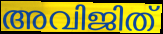
അവിജിത്